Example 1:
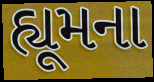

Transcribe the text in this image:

હ્યૂમના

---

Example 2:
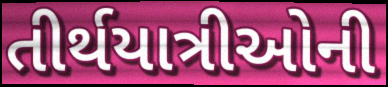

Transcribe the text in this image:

તીર્થયાત્રીઓની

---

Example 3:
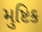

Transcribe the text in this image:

મુષ્ટિક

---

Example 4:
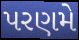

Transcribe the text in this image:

પરણમે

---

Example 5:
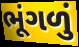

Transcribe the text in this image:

ભૂંગળું